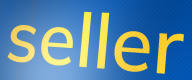
seller